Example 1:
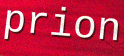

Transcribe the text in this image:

prion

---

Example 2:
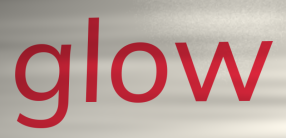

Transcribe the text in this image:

glow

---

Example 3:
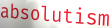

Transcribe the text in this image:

absolutism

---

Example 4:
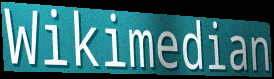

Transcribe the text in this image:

Wikimedian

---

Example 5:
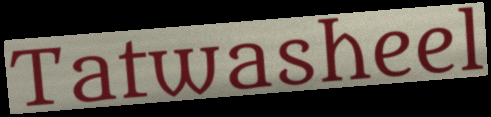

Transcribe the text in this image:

Tatwasheel